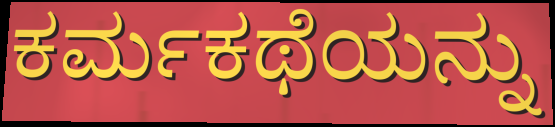
ಕರ್ಮಕಥೆಯನ್ನು